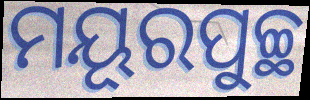
ମୟୂରପୁଚ୍ଛ